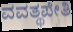
ವವತ್ಥಪೇತಿ